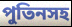
পুতিনসহ